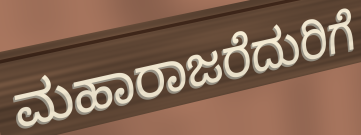
ಮಹಾರಾಜರೆದುರಿಗೆ